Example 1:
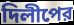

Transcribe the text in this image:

দিলীপের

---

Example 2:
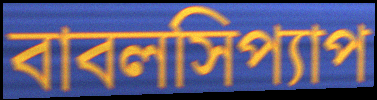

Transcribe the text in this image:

বাবলসিপ্যাপ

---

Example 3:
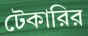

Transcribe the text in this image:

টেকারির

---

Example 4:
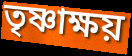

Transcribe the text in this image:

তৃষ্ণাক্ষয়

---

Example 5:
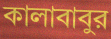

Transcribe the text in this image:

কালাবাবুর